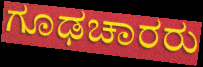
ಗೂಢಚಾರರು